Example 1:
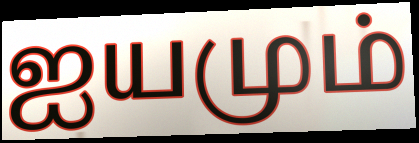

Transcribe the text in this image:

ஐயமும்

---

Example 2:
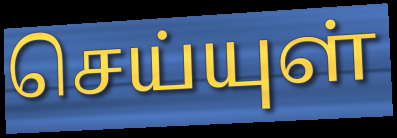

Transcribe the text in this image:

செய்யுள்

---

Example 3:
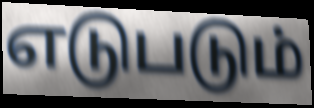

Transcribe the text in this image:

எடுபடும்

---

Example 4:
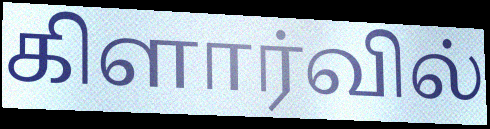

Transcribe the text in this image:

கிளார்வில்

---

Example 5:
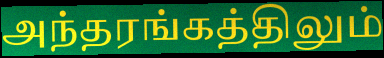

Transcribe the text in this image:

அந்தரங்கத்திலும்